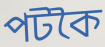
পটকৈ